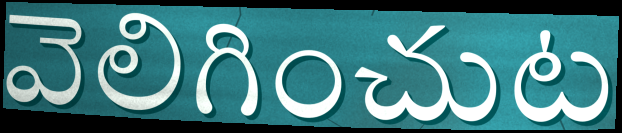
వెలిగించుట